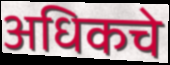
अधिकचे